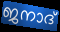
ജനാദ്